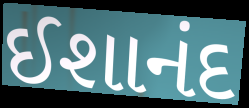
ઈશાનંદ